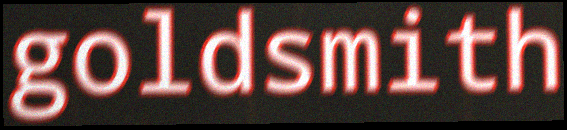
goldsmith